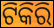
ଟିକିରି